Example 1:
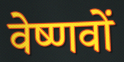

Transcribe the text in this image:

वेष्णवों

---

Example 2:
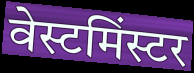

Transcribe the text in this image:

वेस्‍टमिंस्‍टर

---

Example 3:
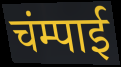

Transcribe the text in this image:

चंम्पाई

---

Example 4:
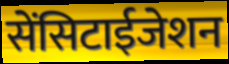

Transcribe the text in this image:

सेंसिटाईजेशन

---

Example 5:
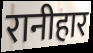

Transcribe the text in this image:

रानीहार